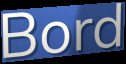
Bord